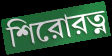
শিরোরত্ন